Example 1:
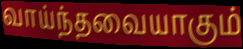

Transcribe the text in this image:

வாய்ந்தவையாகும்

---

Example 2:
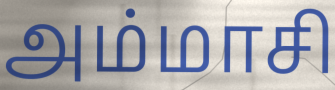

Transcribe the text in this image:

அம்மாசி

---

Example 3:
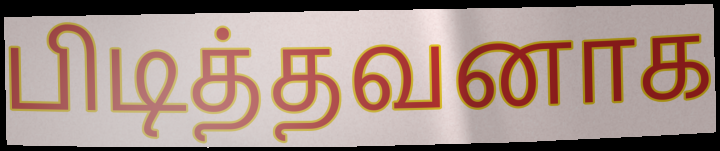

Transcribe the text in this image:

பிடித்தவனாக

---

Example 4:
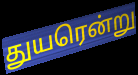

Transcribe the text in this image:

துயரென்று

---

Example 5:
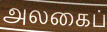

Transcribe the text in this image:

அலகைப்